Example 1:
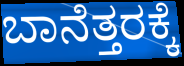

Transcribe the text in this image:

ಬಾನೆತ್ತರಕ್ಕೆ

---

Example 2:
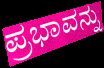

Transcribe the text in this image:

ಪ್ರಭಾವನ್ನು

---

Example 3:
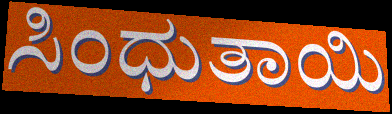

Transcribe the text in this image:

ಸಿಂಧುತಾಯಿ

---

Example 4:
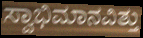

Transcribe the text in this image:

ಸ್ವಾಭಿಮಾನವಿತ್ತು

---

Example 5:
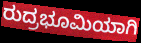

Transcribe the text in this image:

ರುದ್ರಭೂಮಿಯಾಗಿ